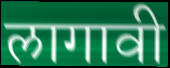
लागावी